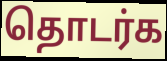
தொடர்க